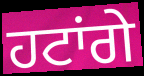
ਹਟਾਂਗੇ